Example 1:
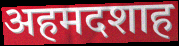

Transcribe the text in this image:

अहमदशाह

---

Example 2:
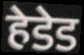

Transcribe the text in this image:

हेडेड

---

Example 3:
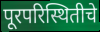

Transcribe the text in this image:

पूरपरिस्थितीचे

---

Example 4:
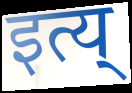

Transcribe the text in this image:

इत्य्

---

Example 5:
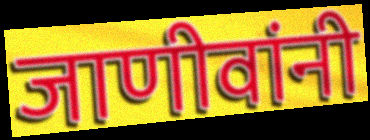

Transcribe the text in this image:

जाणीवांनी